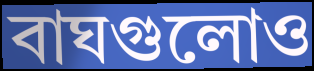
বাঘগুলোও